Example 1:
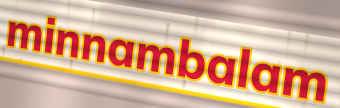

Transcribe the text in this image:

minnambalam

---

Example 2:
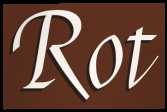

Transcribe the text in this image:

Rot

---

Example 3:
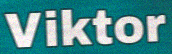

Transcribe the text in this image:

Viktor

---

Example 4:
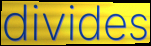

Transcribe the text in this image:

divides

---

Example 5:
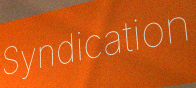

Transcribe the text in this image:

Syndication